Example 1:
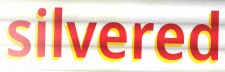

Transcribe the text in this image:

silvered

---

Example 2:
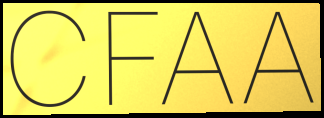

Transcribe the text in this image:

CFAA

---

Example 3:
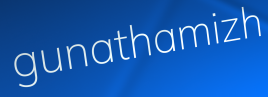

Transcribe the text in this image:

gunathamizh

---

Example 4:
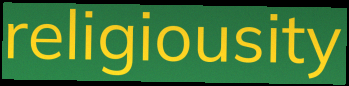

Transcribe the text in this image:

religiousity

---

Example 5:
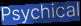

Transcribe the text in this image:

Psychical